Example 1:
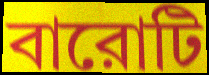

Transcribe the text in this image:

বারোটি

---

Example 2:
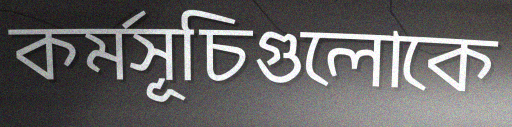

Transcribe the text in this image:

কর্মসূচিগুলোকে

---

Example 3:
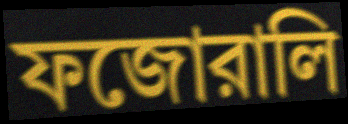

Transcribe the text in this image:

ফজোরালি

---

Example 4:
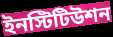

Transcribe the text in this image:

ইনস্টিটিউশন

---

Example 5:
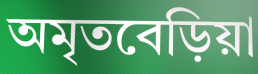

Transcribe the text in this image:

অমৃতবেড়িয়া